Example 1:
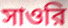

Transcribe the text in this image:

সাওরি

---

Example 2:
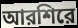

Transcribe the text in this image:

আরশিরে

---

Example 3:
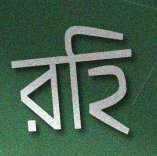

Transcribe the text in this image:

রহি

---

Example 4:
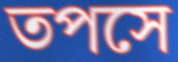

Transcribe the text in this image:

তপসে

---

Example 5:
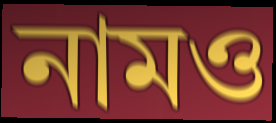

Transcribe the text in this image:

নামও